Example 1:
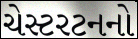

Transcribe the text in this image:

ચેસ્ટરટનનો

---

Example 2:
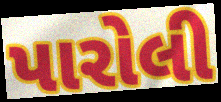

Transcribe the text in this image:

પારોલી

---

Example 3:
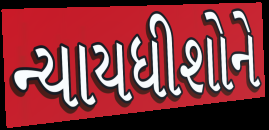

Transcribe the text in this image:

ન્યાયધીશોને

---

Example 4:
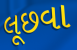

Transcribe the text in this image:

લૂછવા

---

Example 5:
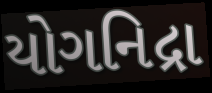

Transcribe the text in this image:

યોગનિદ્રા